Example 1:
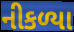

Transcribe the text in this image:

નીકળ્યા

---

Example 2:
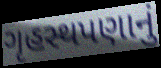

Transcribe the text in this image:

ગૃહસ્થપણાનું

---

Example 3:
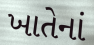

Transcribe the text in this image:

ખાતેનાં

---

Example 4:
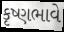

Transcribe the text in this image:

કૃષ્ણભાવે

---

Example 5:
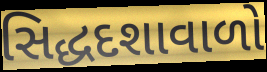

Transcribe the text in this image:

સિદ્ધદશાવાળો